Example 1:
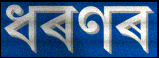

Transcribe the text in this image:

ধৰণৰ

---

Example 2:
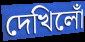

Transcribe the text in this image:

দেখিলোঁ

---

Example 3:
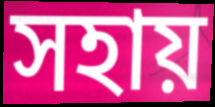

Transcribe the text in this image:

সহায়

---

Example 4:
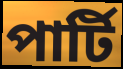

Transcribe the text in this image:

পাৰ্টি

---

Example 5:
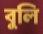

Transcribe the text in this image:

বুলি